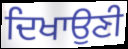
ਦਿਖਾਉਣੀ